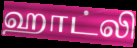
ஹாட்லி